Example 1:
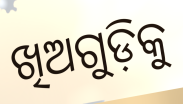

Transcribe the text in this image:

ଖିଅଗୁଡ଼ିକୁ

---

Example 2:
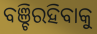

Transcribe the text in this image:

ବଞ୍ଚିରହିବାକୁ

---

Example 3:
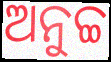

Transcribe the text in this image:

ଅନୁଚ୍ଚ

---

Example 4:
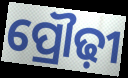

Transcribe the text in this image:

ପ୍ରୌଢ଼ୀ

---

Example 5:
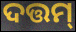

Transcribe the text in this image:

ଦତ୍ତମ୍